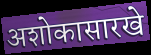
अशोकासारखे